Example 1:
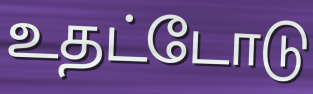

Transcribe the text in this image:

உதட்டோடு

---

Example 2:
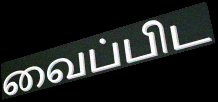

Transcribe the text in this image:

வைப்பிட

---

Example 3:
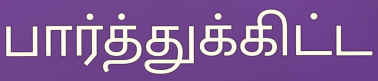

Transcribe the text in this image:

பார்த்துக்கிட்ட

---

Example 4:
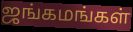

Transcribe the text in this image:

ஜங்கமங்கள்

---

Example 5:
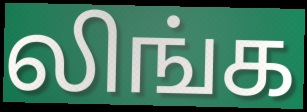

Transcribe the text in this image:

லிங்க